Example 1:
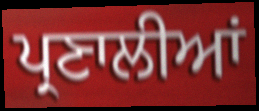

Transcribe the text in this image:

ਪ੍ਰਣਾਲੀਆਂ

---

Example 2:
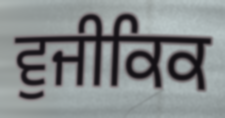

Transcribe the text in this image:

ਵੁਜੀਕਿਕ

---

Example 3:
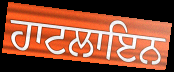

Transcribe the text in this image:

ਹਾਟਲਾਇਨ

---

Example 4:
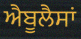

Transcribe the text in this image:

ਐਬੂਲੈਸਾਂ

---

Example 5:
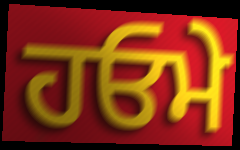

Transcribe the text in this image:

ਹਓਮੇ